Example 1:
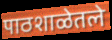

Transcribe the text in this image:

पाठशाळेतले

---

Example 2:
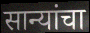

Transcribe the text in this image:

सान्यांचा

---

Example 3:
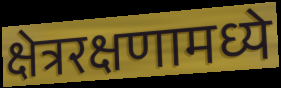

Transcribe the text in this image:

क्षेत्ररक्षणामध्ये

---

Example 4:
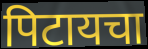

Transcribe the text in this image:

पिटायचा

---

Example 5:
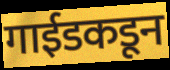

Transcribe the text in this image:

गाईडकडून